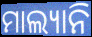
ମାଲ୍ୟାନି